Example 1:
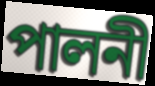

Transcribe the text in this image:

পালনী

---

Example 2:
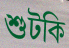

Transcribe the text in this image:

শুটকি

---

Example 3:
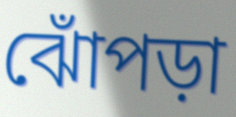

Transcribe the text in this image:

ঝোঁপড়া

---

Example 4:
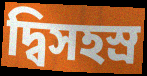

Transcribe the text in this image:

দ্বিসহস্র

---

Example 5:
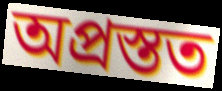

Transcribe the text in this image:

অপ্রস্তত